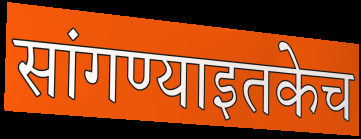
सांगण्याइतकेच